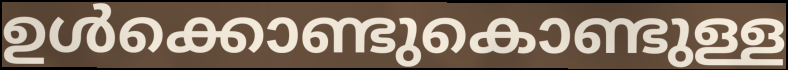
ഉൾക്കൊണ്ടുകൊണ്ടുള്ള